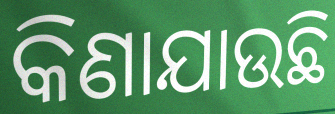
କିଣାଯାଉଛି